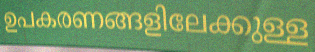
ഉപകരണങ്ങളിലേക്കുള്ള